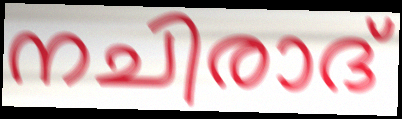
നചിരാദ്